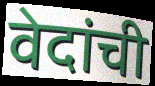
वेदांची